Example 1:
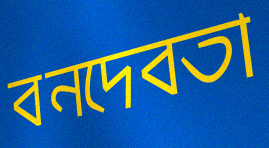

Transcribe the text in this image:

বনদেবতা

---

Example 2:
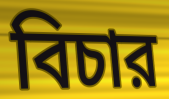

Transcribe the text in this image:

বিচার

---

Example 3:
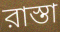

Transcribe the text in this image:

রাস্তা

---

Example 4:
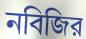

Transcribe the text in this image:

নবিজির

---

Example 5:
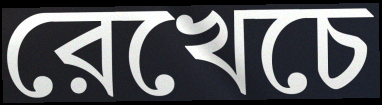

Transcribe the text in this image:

রেখেচে